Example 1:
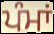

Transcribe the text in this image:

ਪੰਮਾਂ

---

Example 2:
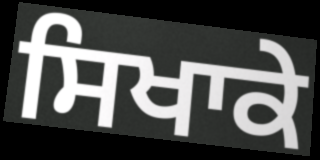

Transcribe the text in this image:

ਸਿਖਾਕੇ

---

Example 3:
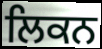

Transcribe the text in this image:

ਲਿਕਨ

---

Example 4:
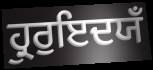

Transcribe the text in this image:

ਹ੍ਰੁਰੁਇਦਯਁ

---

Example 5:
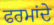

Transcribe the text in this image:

ਫਰਮਾਂਦੇ